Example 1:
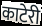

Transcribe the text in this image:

काटेरी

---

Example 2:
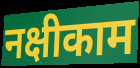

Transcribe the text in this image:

नक्षीकाम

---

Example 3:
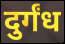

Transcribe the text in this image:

दुर्गंध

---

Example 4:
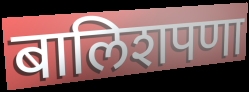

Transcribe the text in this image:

बालिशपणा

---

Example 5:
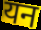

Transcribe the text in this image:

यन